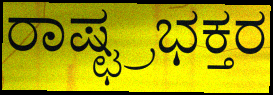
ರಾಷ್ಟ್ರಭಕ್ತರ